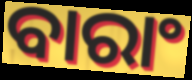
ବାରାଂ